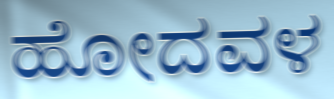
ಹೋದವಳ